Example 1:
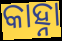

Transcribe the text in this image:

କାହ୍ନା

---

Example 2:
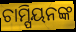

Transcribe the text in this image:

ଚାମ୍ପିୟନଙ୍କ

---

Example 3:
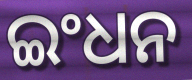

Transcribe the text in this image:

ଇଂଧନ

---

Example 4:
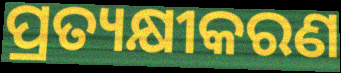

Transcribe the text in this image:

ପ୍ରତ୍ୟକ୍ଷୀକରଣ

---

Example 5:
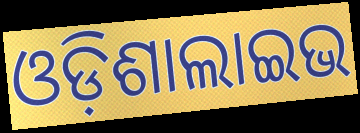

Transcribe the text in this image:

ଓଡ଼ିଶାଲାଇଭ